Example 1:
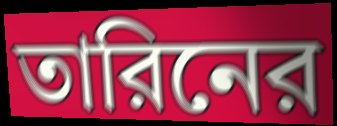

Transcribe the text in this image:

তারিনের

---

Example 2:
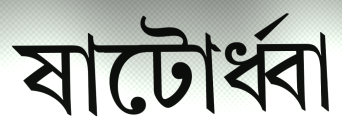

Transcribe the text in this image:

ষাটোর্ধ্বা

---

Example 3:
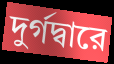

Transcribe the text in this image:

দুর্গদ্বারে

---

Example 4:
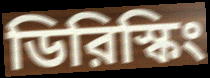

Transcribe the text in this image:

ডিরিস্কিং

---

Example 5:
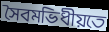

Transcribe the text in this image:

সৈবমভিধীয়তে